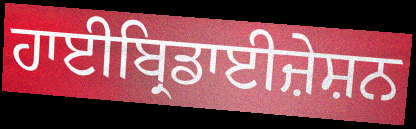
ਹਾਈਬ੍ਰਿਡਾਈਜ਼ੇਸ਼ਨ